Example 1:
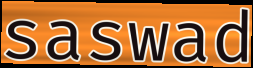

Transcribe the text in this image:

saswad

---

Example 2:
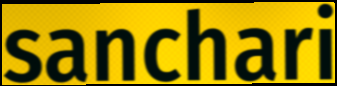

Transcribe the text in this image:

sanchari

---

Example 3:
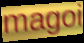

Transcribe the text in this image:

magoi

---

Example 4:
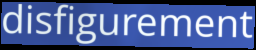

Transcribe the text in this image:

disfigurement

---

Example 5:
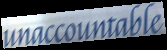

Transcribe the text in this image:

unaccountable